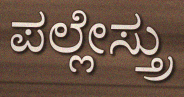
ಪಲ್ಲೇಸ್ತ್ರು